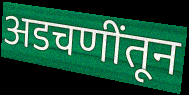
अडचणींतून